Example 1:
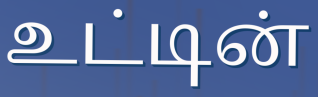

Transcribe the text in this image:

உட்டின்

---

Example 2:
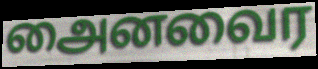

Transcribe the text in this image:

அைனவைர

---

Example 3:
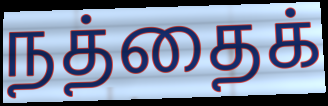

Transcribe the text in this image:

நத்தைக்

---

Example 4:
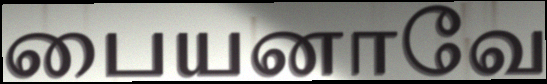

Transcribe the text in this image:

பையனாவே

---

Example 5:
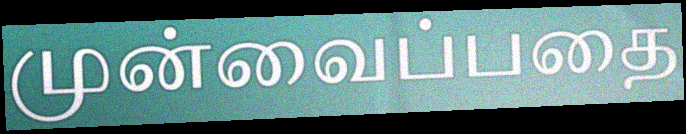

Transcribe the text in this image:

முன்வைப்பதை